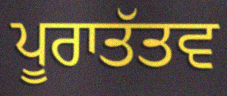
ਪੂਰਾਤੱਤਵ